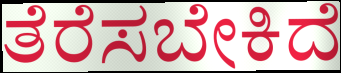
ತೆರೆಸಬೇಕಿದೆ